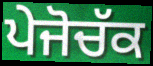
ਪੇਜੋਚੱਕ